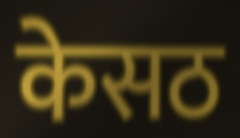
केसठ